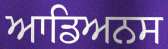
ਆਡਿਅਨਸ